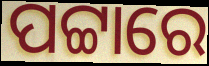
ପଟ୍ଟାରେ